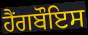
ਹੈਂਗਬੌਇਸ